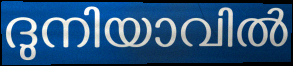
ദുനിയാവിൽ